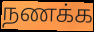
நணக்க